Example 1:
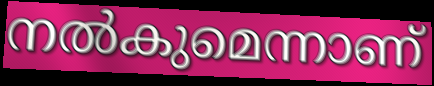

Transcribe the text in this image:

നൽകുമെന്നാണ്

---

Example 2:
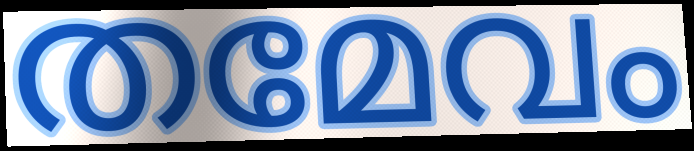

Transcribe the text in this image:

തമേവം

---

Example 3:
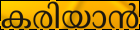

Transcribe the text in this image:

കരിയാൻ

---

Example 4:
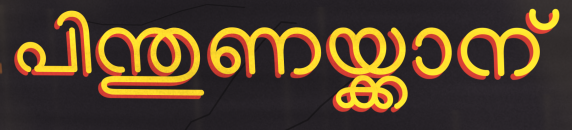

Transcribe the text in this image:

പിന്തുണയ്ക്കാന്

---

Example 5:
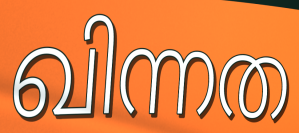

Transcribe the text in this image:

ഖിന്നത